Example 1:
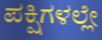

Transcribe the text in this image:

ಪಕ್ಷಿಗಳಲ್ಲೇ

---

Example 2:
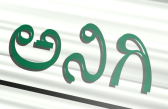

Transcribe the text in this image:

ಅನಿಗಿ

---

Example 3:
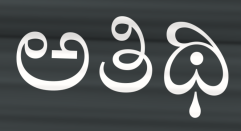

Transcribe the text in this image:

ಅತಿಥಿ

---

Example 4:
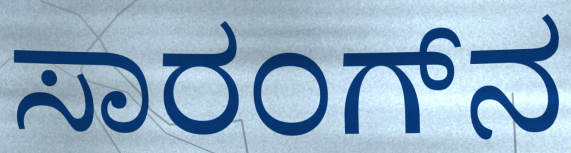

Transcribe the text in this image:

ಸಾರಂಗ್‌ನ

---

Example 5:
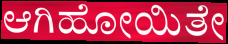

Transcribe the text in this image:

ಆಗಿಹೋಯಿತೇ